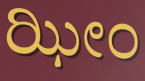
ಝೀಂ